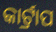
କାର୍ଟ୍ରାପ